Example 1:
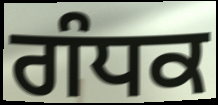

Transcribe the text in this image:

ਗੰਧਕ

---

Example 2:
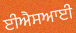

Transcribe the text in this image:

ਈਐਸਆਈ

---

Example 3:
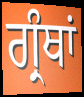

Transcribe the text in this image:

ਗ੍ਰੰਥਾਂ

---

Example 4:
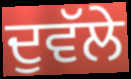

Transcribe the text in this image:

ਦੁਵੱਲੇ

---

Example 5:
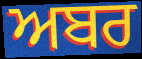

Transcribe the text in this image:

ਅਬਰ